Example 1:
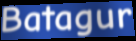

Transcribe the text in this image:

Batagur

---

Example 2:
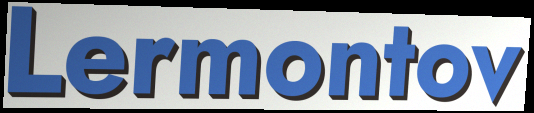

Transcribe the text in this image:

Lermontov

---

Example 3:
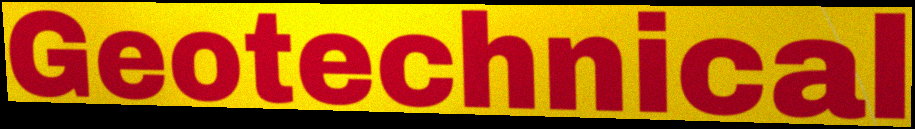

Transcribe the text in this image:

Geotechnical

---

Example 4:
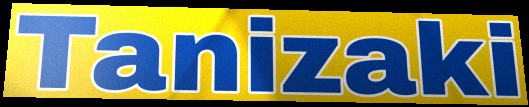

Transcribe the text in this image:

Tanizaki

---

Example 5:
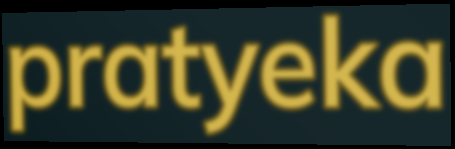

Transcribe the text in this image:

pratyeka